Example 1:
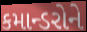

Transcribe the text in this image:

કમાન્ડરોને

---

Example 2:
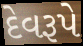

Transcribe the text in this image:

દેવરૂપે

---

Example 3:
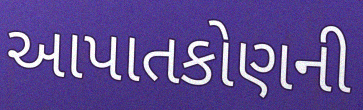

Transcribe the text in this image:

આપાતકોણની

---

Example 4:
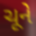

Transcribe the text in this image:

ચૂને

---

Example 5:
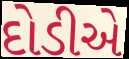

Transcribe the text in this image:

દોડીએ